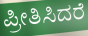
ಪ್ರೀತಿಸಿದರೆ